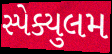
સ્પેક્યુલમ